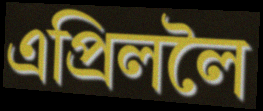
এপ্ৰিললৈ